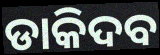
ଡାକିଦବ